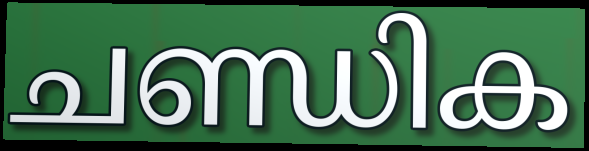
ചണ്ഡിക